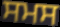
ਸਮਸ